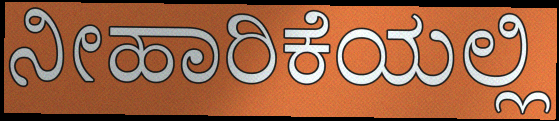
ನೀಹಾರಿಕೆಯಲ್ಲಿ